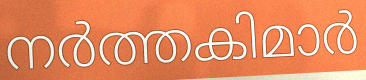
നർത്തകിമാർ